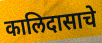
कालिदासाचे